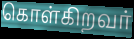
கொள்கிறவர்